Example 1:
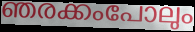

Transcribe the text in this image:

ഞരക്കംപോലും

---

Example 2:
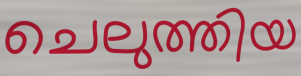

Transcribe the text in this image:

ചെലുത്തിയ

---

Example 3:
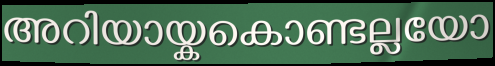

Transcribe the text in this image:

അറിയായ്കകൊണ്ടല്ലയോ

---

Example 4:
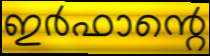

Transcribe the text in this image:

ഇർഫാന്റെ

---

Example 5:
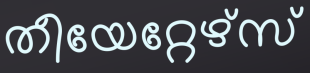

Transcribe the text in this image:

തീയേറ്റേഴ്സ്